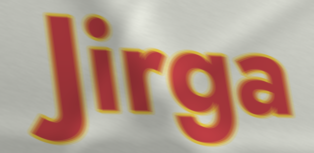
Jirga